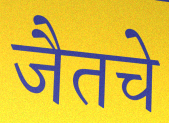
जैतचे